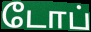
டோப்